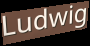
Ludwig